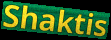
Shaktis